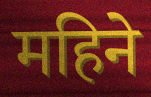
महिने